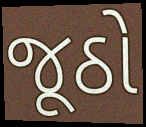
જૂઠો